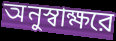
অনুস্বাক্ষরে